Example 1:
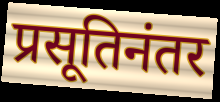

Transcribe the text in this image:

प्रसूतिनंतर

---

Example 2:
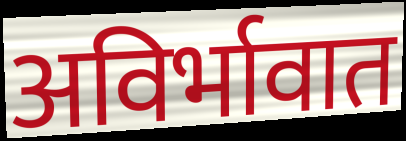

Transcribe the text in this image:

अविर्भावात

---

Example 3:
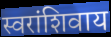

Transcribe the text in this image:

स्वरांशिवाय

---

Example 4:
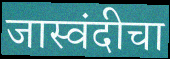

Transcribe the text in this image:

जास्वंदीचा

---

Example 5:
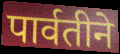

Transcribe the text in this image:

पार्वतीने